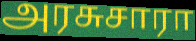
அரசுசாரா